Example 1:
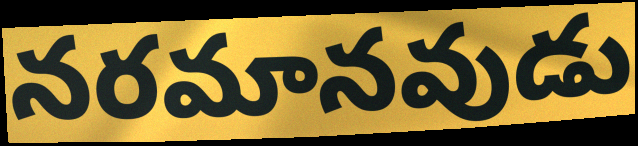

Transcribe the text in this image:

నరమానవుడు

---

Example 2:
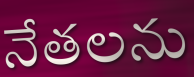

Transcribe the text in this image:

నేతలను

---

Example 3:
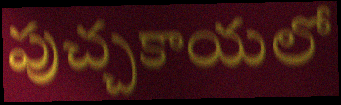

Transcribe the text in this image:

పుచ్చకాయలో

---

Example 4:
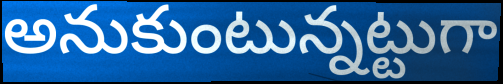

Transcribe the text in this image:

అనుకుంటున్నట్టుగా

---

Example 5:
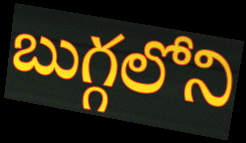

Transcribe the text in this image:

బుగ్గలోని